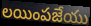
లయింపజేయు